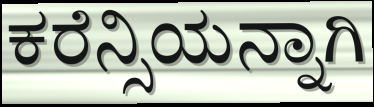
ಕರೆನ್ಸಿಯನ್ನಾಗಿ